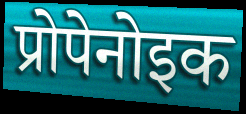
प्रोपेनोइक